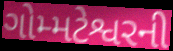
ગોમ્મટેશ્વરની